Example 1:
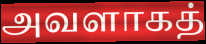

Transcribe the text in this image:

அவளாகத்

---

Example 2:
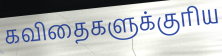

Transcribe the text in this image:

கவிதைகளுக்குரிய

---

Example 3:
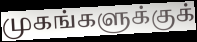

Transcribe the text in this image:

முகங்களுக்குக்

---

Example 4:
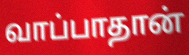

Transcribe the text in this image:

வாப்பாதான்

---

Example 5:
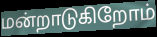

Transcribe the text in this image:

மன்றாடுகிறோம்